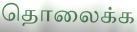
தொலைக்க